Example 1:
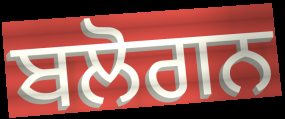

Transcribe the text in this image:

ਬਲੋਗਨ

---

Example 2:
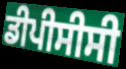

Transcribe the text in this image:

ਡੀਪੀਸੀਸੀ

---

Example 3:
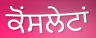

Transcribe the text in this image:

ਕੋਂਸਲੇਟਾਂ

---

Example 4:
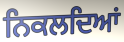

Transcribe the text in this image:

ਨਿਕਲਦਿਆਂ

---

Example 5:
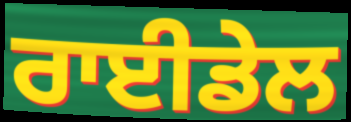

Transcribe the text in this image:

ਰਾਈਡੇਲ